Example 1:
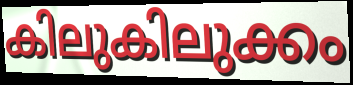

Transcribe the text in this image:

കിലുകിലുക്കം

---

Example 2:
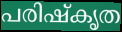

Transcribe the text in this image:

പരിഷ്കൃത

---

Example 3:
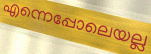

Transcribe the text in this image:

എന്നെപ്പോലെയല്ല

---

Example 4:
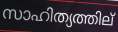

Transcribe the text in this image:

സാഹിത്യത്തില്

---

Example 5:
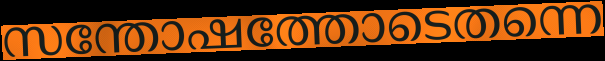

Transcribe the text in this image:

സന്തോഷത്തോടെതന്നെ